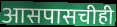
आसपासचीही